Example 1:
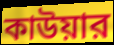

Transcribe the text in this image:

কাউয়ার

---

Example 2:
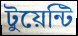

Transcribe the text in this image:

টুয়েন্টি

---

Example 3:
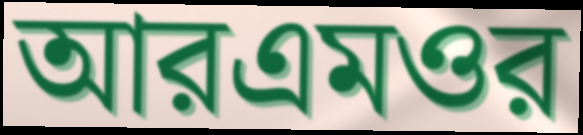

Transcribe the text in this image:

আরএমওর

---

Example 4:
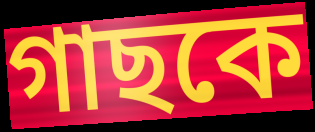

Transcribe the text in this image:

গাছকে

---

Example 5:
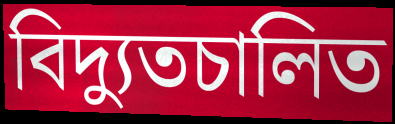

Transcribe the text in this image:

বিদ্যুতচালিত